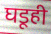
घडूही